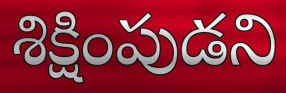
శిక్షింపుడని